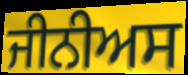
ਜੀਨੀਅਸ